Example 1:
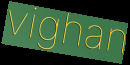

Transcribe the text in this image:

vighan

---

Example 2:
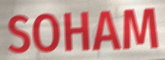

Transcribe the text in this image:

SOHAM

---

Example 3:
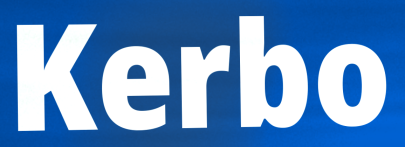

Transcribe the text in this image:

Kerbo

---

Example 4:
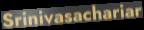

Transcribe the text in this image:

Srinivasachariar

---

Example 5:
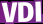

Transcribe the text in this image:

VDI